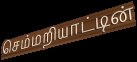
செம்மறியாட்டின்